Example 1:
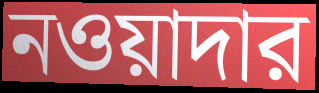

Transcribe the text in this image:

নওয়াদার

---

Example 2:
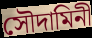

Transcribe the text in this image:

সৌদামিনী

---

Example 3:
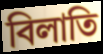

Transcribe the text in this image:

বিলাতি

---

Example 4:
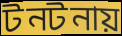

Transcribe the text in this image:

টনটনায়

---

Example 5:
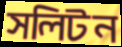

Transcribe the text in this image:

সলিটন